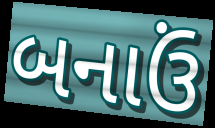
બનાઉં